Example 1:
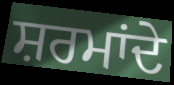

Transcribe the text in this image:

ਸ਼ਰਮਾਂਦੇ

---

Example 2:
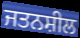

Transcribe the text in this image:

ਜਤਨਸ਼ੀਲ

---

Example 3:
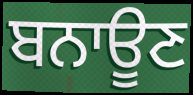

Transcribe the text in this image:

ਬਨਾਊਣ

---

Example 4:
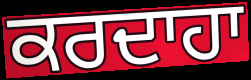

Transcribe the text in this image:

ਕਰਦਾਹਾ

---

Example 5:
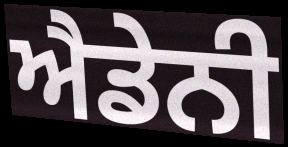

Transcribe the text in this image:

ਐਡੇਨੀ